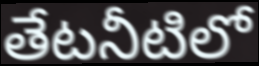
తేటనీటిలో